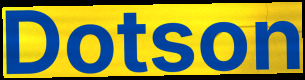
Dotson